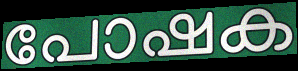
പോഷക